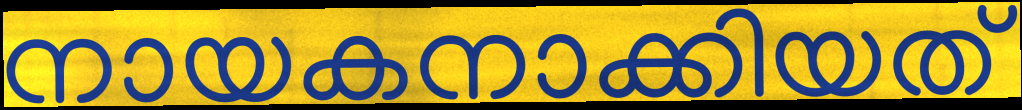
നായകനാക്കിയത്